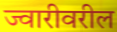
ज्वारीवरील